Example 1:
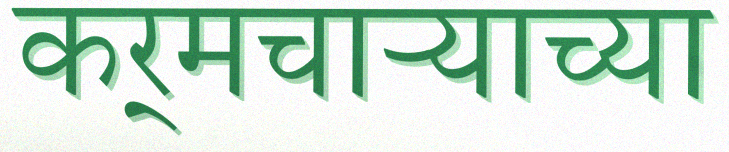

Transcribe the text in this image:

कर्मचाऱ्याच्या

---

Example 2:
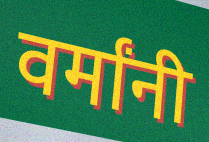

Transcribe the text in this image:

वर्मांनी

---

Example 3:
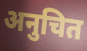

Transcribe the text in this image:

अनुचित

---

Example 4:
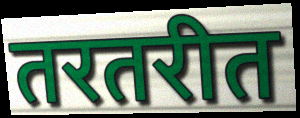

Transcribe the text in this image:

तरतरीत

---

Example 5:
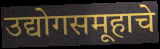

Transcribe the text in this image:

उद्योगसमूहाचे